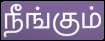
நீங்கும்